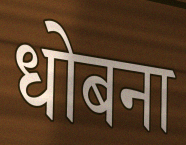
धोबना